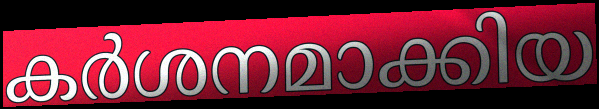
കർശനമാക്കിയ